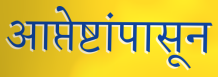
आप्तेष्टांपासून